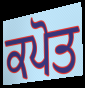
ਕਪੋਤ